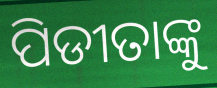
ପିଡୀତାଙ୍କୁ